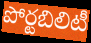
పోర్టబిలిటీ